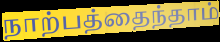
நாற்பத்தைந்தாம்